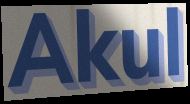
Akul